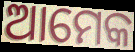
ଆମେକ